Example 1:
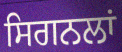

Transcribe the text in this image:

ਸਿਗਨਲਾਂ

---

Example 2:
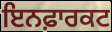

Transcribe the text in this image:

ਇਨਫ਼ਾਰਕਟ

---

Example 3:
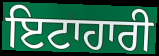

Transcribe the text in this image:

ਇਟਾਹਾਰੀ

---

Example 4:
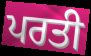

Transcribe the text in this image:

ਪਰਤੀ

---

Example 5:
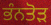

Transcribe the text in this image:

ਭੰਨਤੋੜ